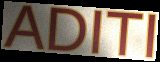
ADITI